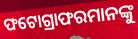
ଫଟୋଗ୍ରାଫରମାନଙ୍କୁ